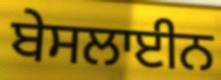
ਬੇਸਲਾਈਨ